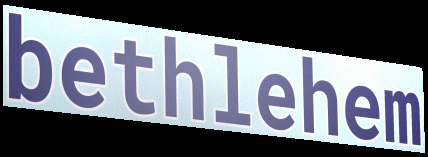
bethlehem